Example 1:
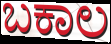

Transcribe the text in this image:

ಬಕಾಲ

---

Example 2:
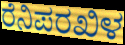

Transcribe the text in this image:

ರೆನಿಪರಖಿಳ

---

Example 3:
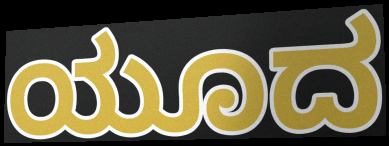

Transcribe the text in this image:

ಯೂದ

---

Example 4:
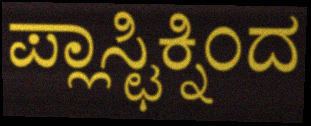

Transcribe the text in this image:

ಪ್ಲಾಸ್ಟಿಕ್ನಿಂದ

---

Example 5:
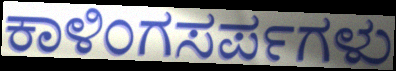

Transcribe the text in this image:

ಕಾಳಿಂಗಸರ್ಪಗಳು